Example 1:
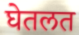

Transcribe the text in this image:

घेतलत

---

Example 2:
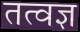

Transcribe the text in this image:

तत्वज्ञ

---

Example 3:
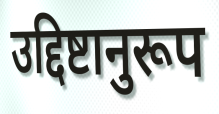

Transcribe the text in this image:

उद्दिष्टानुरूप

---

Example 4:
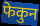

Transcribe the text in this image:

फेकुन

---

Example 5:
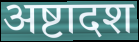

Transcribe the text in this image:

अष्टादश